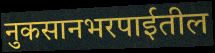
नुकसानभरपाईतील